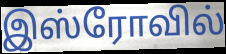
இஸ்ரோவில்